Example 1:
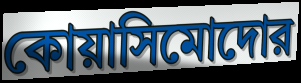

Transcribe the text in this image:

কোয়াসিমোদোর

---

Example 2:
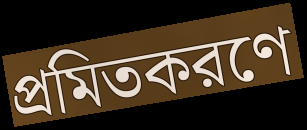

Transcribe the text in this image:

প্রমিতকরণে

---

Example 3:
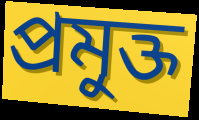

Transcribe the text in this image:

প্রমুক্ত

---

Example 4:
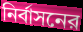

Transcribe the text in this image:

নির্বাসনের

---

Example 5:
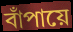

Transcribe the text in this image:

বাঁপায়ে